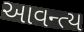
આવન્ત્ય